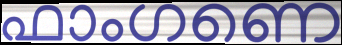
ഫാംഗണെ